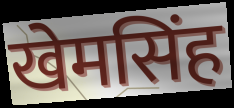
खेमसिंह